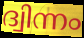
ദ്വിന്നം